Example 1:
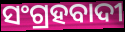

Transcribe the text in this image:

ସଂଗ୍ରହବାଦୀ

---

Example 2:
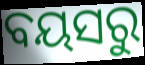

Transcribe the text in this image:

ବୟସରୁ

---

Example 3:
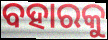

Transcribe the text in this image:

ବହାରକୁ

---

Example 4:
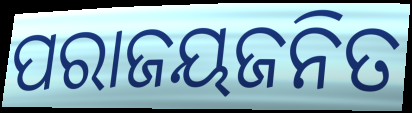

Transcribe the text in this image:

ପରାଜୟଜନିତ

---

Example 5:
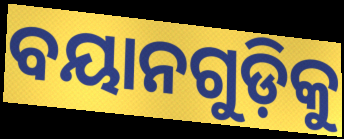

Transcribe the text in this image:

ବୟାନଗୁଡ଼ିକୁ